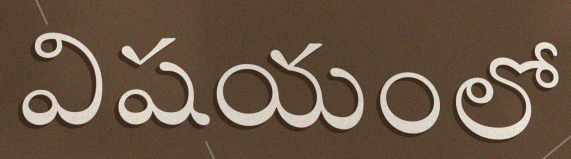
విషయంలో